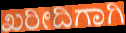
ಖರೀದಿಗಾಗಿ